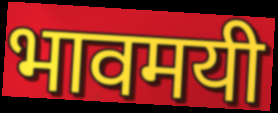
भावमयी